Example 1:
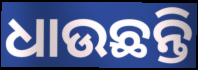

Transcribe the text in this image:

ଧାଉଛନ୍ତି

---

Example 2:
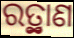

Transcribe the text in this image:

ରତ୍ର୍ଥାଣ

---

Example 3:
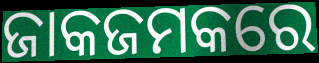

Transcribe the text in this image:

ଜାକଜମକରେ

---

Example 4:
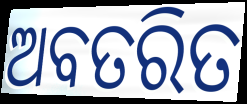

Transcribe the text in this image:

ଅବତରିତ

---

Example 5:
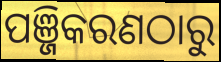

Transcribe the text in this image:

ପଞ୍ଜିକରଣଠାରୁ